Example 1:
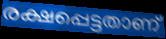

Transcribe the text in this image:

രക്ഷപ്പെട്ടതാണ്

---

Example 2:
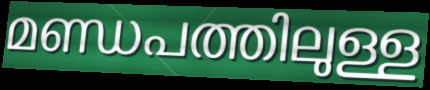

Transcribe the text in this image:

മണ്ഡപത്തിലുള്ള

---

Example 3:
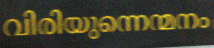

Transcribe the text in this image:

വിരിയുന്നെന്മനം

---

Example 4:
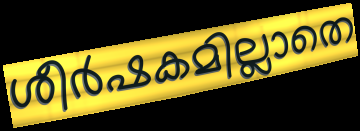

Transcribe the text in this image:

ശീർഷകമില്ലാതെ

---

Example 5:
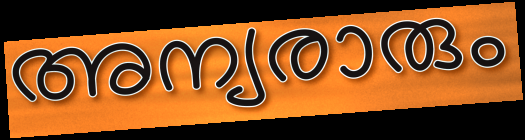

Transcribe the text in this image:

അന്യരാരും